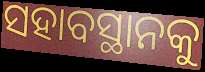
ସହାବସ୍ଥାନକୁ